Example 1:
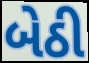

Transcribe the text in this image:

બેઠી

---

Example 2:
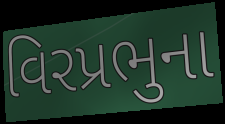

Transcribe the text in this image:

વિરપ્રભુના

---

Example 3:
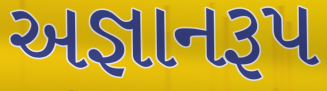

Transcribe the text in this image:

અજ્ઞાનરૂપ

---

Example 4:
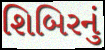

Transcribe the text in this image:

શિબિરનું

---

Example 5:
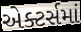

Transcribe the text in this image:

એક્ટર્સમાં